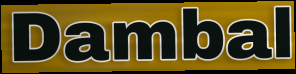
Dambal